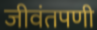
जीवंतपणी